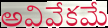
అవివేకమే